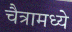
चैत्रामध्ये